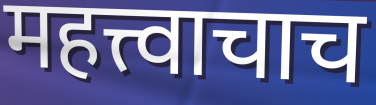
महत्त्वाचाच